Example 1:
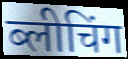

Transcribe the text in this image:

ब्लीचिंग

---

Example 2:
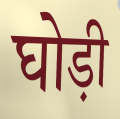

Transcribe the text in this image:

घोड़ी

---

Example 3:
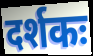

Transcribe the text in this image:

दर्शकः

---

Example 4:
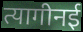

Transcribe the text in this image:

त्यागीनई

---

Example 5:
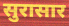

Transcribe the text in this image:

सुरासार